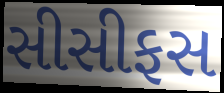
સીસીફસ